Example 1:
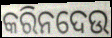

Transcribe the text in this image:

କରିନଦେଉ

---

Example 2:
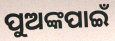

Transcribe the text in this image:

ପୁଅଙ୍କପାଇଁ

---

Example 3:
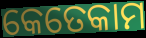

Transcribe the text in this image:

କେତେକାମ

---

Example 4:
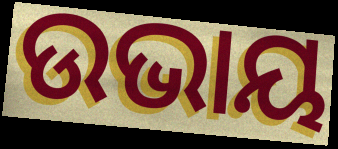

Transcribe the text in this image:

ଉଭାୟ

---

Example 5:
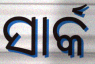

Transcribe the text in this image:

ସାର୍କ